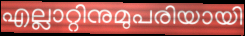
എല്ലാറ്റിനുമുപരിയായി